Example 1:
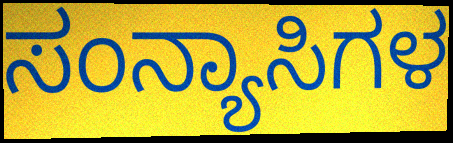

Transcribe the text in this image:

ಸಂನ್ಯಾಸಿಗಳ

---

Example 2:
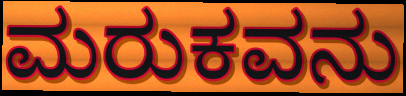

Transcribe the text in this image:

ಮರುಕವನು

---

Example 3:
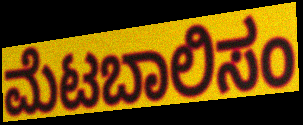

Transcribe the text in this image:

ಮೆಟಬಾಲಿಸಂ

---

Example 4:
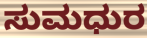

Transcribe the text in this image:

ಸುಮಧುರ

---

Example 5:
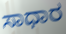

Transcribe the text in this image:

ಸಾಧಾರ